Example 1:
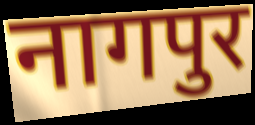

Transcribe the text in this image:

नागपुर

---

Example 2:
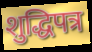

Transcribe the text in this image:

शुद्धिपत्र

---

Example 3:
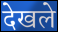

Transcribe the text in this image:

देखले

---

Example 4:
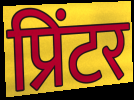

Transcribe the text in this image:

प्रिंटर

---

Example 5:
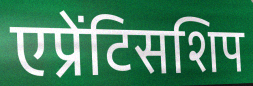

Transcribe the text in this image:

एप्रेंटिसशिप